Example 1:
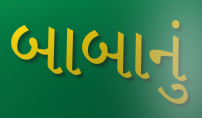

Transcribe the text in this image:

બાબાનું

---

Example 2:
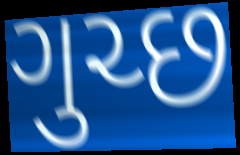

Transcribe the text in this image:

ગુચ્છ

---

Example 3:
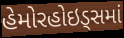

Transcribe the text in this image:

હેમોરહોઇડ્સમાં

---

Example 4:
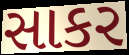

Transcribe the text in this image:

સાકર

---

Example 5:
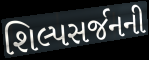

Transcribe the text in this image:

શિલ્પસર્જનની